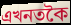
এখনতকৈ